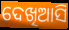
ଦେଖିଆସି